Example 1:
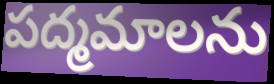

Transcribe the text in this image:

పద్మమాలను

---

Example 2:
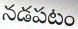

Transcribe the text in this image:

నడపటం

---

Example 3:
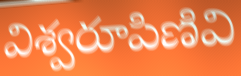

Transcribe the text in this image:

విశ్వరూపిణివి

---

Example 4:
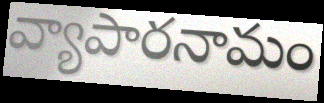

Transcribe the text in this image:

వ్యాపారనామం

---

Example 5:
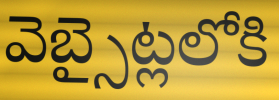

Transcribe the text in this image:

వెబ్సైట్లలోకి